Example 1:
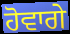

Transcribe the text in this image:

ਹੋਵਾਗੇ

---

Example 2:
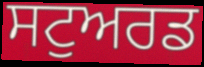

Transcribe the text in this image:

ਸਟੁਅਰਡ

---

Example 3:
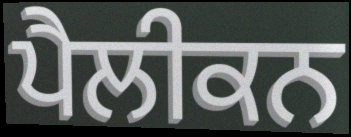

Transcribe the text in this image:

ਪੈਲੀਕਨ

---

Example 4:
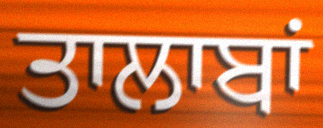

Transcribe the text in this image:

ਤਾਲਾਬਾਂ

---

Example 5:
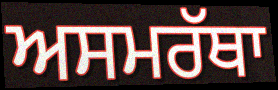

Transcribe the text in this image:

ਅਸਮਰੱਥਾ